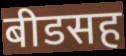
बीडसह